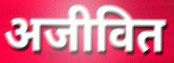
अजीवित